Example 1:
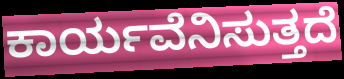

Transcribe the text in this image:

ಕಾರ್ಯವೆನಿಸುತ್ತದೆ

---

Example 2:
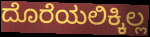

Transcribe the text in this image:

ದೊರೆಯಲಿಕ್ಕಿಲ್ಲ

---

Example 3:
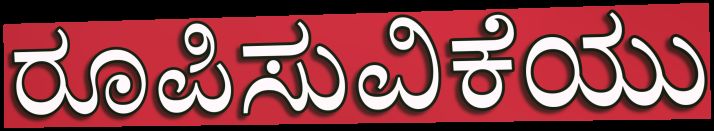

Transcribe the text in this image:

ರೂಪಿಸುವಿಕೆಯು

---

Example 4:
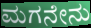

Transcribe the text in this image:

ಮಗನೇನು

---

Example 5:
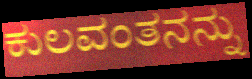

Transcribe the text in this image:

ಕುಲವಂತನನ್ನು